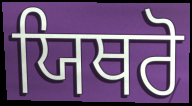
ਯਿਥਰੋ